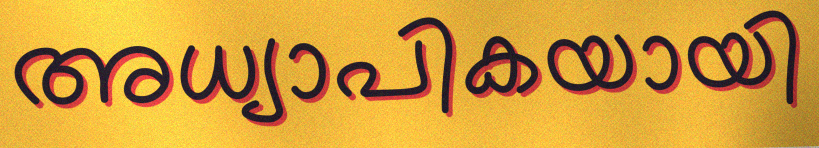
അധ്യാപികയായി